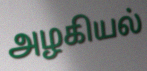
அழகியல்